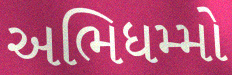
અભિધમ્મો